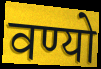
वण्यो